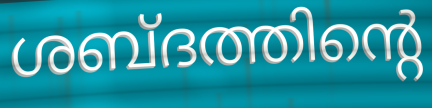
ശബ്ദത്തിന്റെ